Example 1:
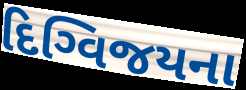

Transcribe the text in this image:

દિગ્વિજયના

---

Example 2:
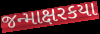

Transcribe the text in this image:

જન્માક્ષરકયા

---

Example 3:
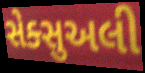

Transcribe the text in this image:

સેક્સુઅલી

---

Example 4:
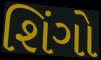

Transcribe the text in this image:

શિંગો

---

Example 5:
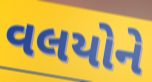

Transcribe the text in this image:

વલયોને